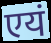
एयं